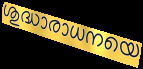
ശുദ്ധാരാധനയെ